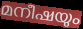
മനീഷയും